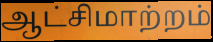
ஆட்சிமாற்றம்